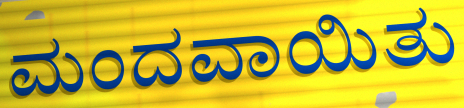
ಮಂದವಾಯಿತು